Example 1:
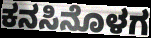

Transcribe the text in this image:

ಕನಸಿನೊಳಗ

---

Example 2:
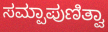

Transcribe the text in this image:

ಸಮ್ಪಾಪುಣಿತ್ವಾ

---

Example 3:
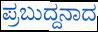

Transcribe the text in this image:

ಪ್ರಬುದ್ದನಾದ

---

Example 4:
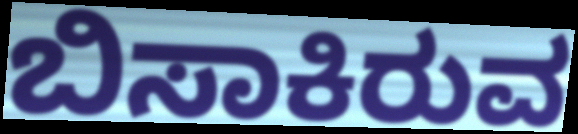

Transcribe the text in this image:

ಬಿಸಾಕಿರುವ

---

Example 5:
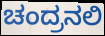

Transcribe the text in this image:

ಚಂದ್ರನಲಿ